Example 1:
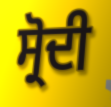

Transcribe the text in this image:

ਸ੍ਰੋਦੀ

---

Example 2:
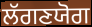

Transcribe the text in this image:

ਲੱਗਣਯੋਗ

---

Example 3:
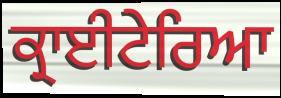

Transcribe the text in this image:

ਕ੍ਰਾਈਟੇਰਿਆ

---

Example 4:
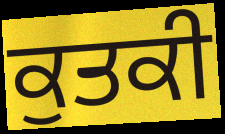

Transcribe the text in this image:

ਕੁਤਕੀ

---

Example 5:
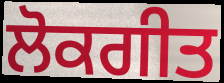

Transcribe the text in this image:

ਲੋਕਗੀਤ